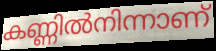
കണ്ണിൽനിന്നാണ്